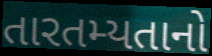
તારતમ્યતાનો